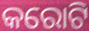
କରୋଟି